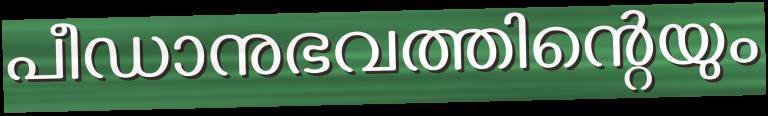
പീഡാനുഭവത്തിന്റെയും